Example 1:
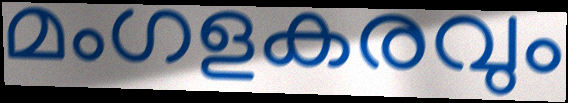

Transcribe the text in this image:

മംഗളകരവും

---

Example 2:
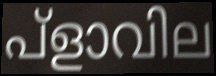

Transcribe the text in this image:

പ്ളാവില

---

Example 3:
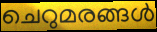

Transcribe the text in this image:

ചെറുമരങ്ങൾ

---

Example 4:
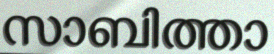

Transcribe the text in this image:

സാബിത്താ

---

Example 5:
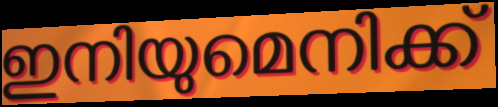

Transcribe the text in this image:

ഇനിയുമെനിക്ക്